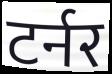
टर्नर